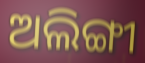
ଅଲିଙ୍ଗୀ